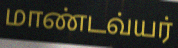
மாண்டவ்யர்